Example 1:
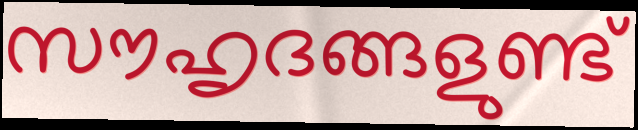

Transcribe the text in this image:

സൗഹൃദങ്ങളുണ്ട്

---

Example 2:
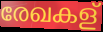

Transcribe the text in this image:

രേഖകള്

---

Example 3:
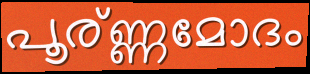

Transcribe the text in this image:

പൂര്ണ്ണമോദം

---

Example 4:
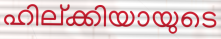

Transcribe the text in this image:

ഹില്ക്കിയായുടെ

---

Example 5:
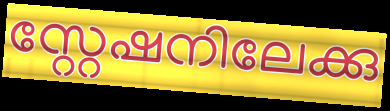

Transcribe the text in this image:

സ്റ്റേഷനിലേക്കു